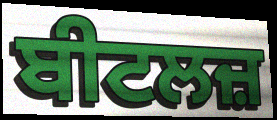
ਬੀਟਲਜ਼